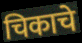
चिकाचे